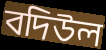
বদিউল